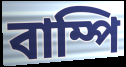
বাম্পি